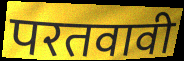
परतवावी